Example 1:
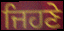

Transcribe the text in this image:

ਜਿਹਣੇ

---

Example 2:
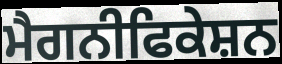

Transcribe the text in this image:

ਮੈਗਨੀਫਿਕੇਸ਼ਨ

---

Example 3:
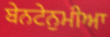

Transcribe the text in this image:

ਬੇਨਟੇਨੁਮੀਆ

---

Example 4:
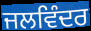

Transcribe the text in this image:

ਜਲਵਿੰਦਰ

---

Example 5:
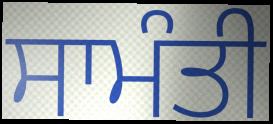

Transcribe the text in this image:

ਸਾਮੰਤੀ